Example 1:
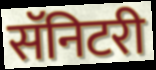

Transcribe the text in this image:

सॅनिटरी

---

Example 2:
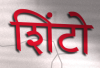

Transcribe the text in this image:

शिंटो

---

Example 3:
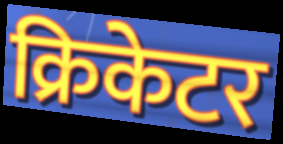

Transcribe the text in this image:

क्रिकेटर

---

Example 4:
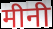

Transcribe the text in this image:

मीनी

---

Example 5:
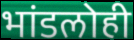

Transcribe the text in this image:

भांडलोही